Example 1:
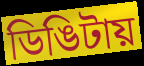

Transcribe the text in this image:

ডিঙিটায়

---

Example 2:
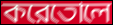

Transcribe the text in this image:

করেতোলে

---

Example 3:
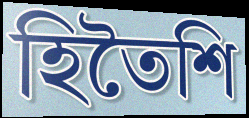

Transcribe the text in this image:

হিতৈশি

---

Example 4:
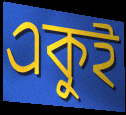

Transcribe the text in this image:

একুই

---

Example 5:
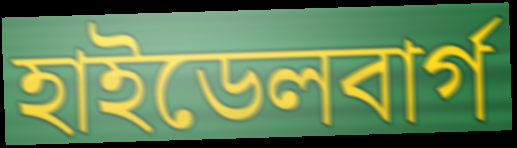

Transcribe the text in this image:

হাইডেলবার্গ